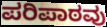
ಪರಿಪಾಠವು